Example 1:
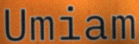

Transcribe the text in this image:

Umiam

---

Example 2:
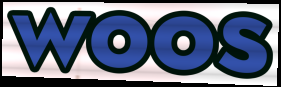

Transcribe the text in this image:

woos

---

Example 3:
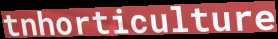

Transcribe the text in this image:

tnhorticulture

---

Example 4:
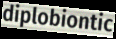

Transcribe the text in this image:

diplobiontic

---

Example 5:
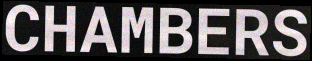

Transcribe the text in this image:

CHAMBERS